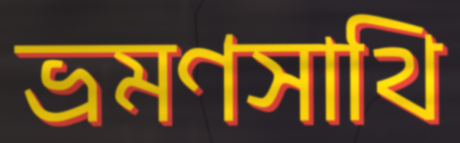
ভ্রমণসাথি